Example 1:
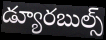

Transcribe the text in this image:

డ్యూరబుల్స్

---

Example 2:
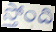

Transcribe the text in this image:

స్తోంది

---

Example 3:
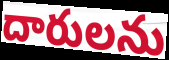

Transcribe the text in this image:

దారులను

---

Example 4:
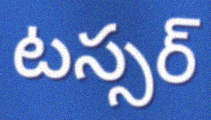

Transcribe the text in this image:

టస్సర్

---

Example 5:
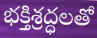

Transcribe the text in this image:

భక్తిశ్రద్ధలతో